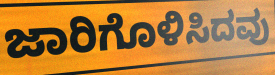
ಜಾರಿಗೊಳಿಸಿದವು